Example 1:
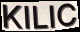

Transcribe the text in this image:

KILIC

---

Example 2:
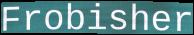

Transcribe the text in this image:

Frobisher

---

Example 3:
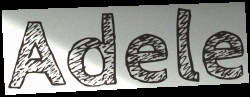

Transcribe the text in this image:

Adele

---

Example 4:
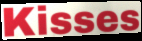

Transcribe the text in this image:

Kisses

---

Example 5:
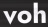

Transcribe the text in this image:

voh